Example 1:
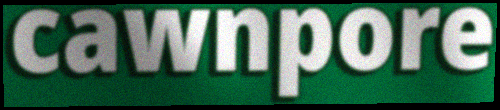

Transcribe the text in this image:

cawnpore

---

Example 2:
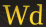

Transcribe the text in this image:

Wd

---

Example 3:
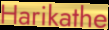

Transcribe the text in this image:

Harikathe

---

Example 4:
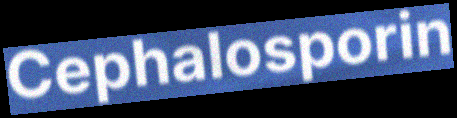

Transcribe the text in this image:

Cephalosporin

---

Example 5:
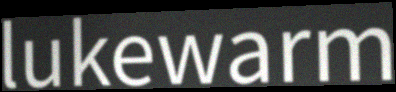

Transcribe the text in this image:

lukewarm